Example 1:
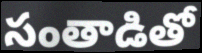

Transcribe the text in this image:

సంతాడితో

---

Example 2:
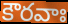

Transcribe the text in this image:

కౌరవాః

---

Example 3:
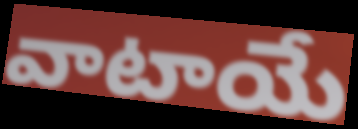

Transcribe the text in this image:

వాటాయే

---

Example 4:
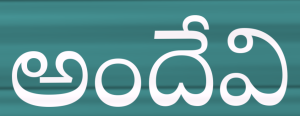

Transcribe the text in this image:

అందేవి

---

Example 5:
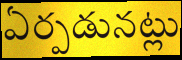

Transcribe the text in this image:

ఏర్పడునట్లు